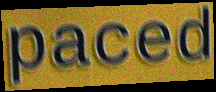
paced